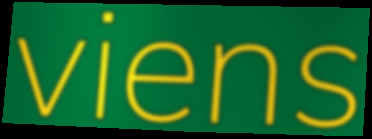
viens